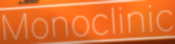
Monoclinic